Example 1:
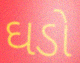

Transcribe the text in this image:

ઘડો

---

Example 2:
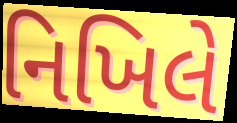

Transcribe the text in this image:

નિખિલે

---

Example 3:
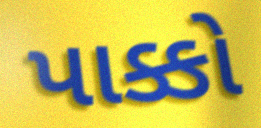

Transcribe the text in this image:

પાક્કો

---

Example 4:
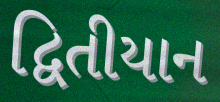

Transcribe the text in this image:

દ્વિતીયાન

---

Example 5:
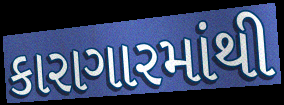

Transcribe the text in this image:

કારાગારમાંથી